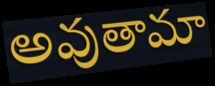
అవుతామా